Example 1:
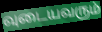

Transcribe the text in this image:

வுடையவரும்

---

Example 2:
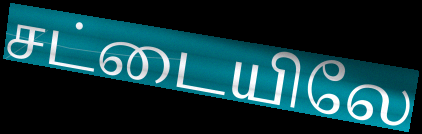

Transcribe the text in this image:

சட்டையிலே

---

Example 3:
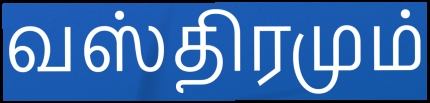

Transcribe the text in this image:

வஸ்திரமும்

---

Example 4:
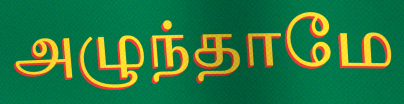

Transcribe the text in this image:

அழுந்தாமே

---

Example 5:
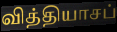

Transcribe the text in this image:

வித்தியாசப்